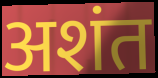
अशंत